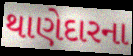
થાણેદારના